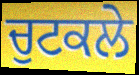
ਚੁਟਕਲੇ